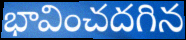
భావించదగిన